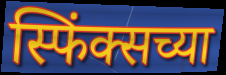
स्फिंक्सच्या